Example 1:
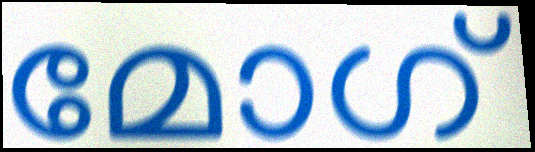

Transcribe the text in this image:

മോഗ്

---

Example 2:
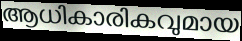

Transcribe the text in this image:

ആധികാരികവുമായ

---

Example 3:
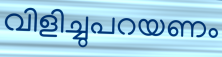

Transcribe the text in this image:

വിളിച്ചുപറയണം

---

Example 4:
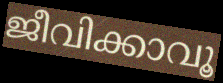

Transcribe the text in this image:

ജീവിക്കാവൂ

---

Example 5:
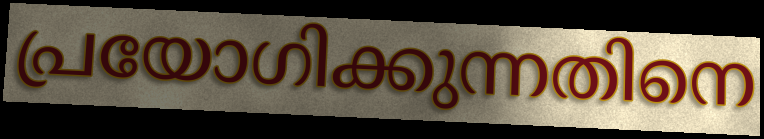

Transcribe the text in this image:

പ്രയോഗിക്കുന്നതിനെ